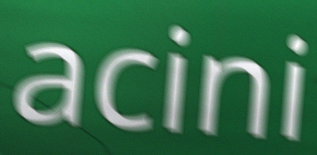
acini